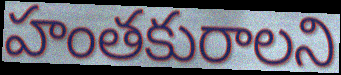
హంతకురాలని